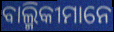
ବାଲ୍ମିକୀମାନେ